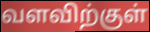
வளவிற்குள்